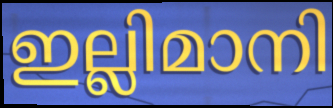
ഇല്ലിമാനി